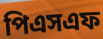
পিএসএফ